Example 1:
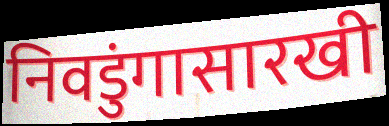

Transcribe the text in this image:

निवडुंगासारखी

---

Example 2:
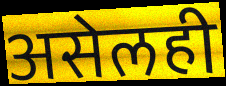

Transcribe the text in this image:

असेलही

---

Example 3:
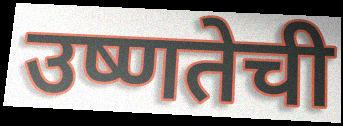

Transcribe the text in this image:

उष्णतेची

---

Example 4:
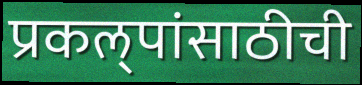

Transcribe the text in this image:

प्रकल्पांसाठीची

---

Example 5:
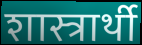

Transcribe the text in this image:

शास्त्रार्थी